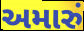
અમારું